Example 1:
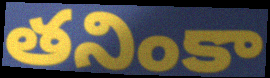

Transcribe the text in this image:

తనింకా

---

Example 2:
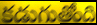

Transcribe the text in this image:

కడుగుతోంది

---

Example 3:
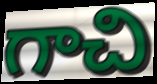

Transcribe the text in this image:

గాచి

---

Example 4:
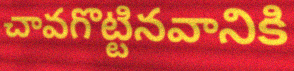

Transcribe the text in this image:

చావగొట్టినవానికి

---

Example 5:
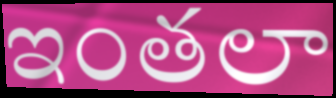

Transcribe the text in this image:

ఇంతలా